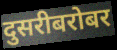
दुसरीबरोबर